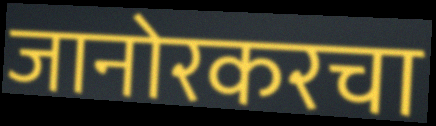
जानोरकरचा